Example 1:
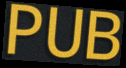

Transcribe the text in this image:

PUB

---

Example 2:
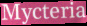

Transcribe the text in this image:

Mycteria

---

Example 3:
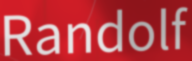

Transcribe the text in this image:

Randolf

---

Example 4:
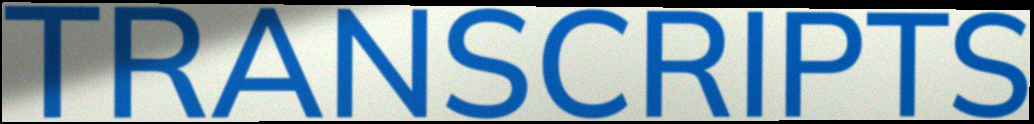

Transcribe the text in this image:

TRANSCRIPTS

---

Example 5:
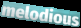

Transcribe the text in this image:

melodious